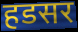
हडसर